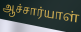
ஆச்சார்யாள்